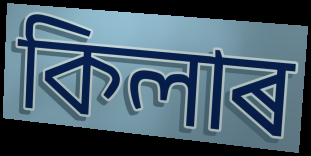
কিলাৰ